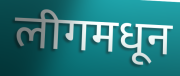
लीगमधून